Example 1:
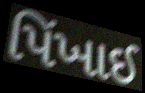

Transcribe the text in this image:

પિંખાઈ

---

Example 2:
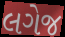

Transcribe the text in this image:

લગેજ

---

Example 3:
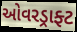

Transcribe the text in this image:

ઓવરડ્રાફ્ટ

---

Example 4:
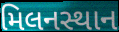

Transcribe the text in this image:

મિલનસ્થાન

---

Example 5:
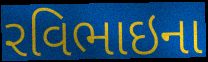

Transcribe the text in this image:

રવિભાઇના